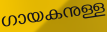
ഗായകനുള്ള